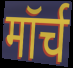
मॉर्च